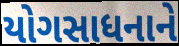
યોગસાધનાને